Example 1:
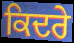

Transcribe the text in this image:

ਕਿਦਰੇ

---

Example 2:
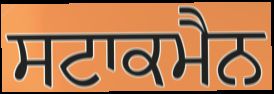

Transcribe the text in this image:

ਸਟਾਕਮੈਨ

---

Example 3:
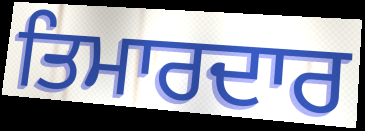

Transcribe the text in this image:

ਤਿਮਾਰਦਾਰ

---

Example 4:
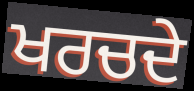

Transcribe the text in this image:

ਖਰਚਦੇ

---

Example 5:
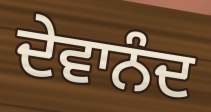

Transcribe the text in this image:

ਦੇਵਾਨੰਦ